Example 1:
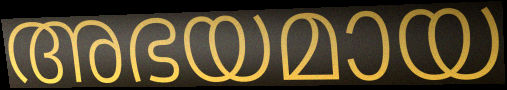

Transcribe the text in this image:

അഭയമായ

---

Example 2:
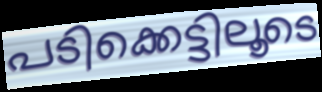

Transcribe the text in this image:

പടിക്കെട്ടിലൂടെ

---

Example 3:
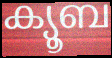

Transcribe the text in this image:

ക്യൂബ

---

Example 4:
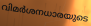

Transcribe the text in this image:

വിമർശനധാരയുടെ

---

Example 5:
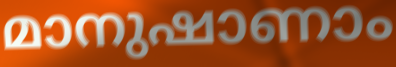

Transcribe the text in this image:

മാനുഷാണാം